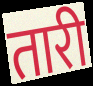
तारी